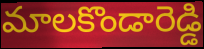
మాలకొండారెడ్డి